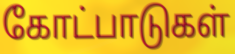
கோட்பாடுகள்